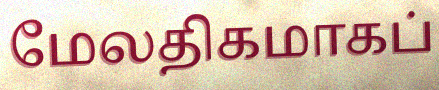
மேலதிகமாகப்